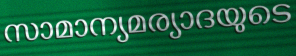
സാമാന്യമര്യാദയുടെ